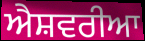
ਐਸ਼ਵਰੀਆ